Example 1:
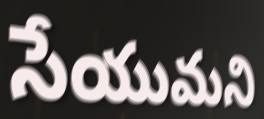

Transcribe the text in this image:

సేయుమని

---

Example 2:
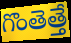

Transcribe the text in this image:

గొంతెత్తే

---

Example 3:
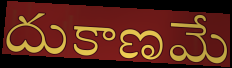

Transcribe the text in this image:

దుకాణమే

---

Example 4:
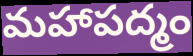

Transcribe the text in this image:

మహాపద్మం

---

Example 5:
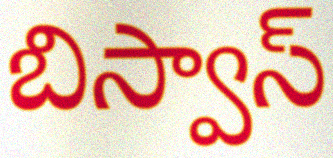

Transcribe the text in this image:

బిస్వాస్